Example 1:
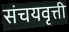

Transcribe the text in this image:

संचयवृत्ती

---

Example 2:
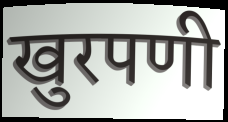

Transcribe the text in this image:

खुरपणी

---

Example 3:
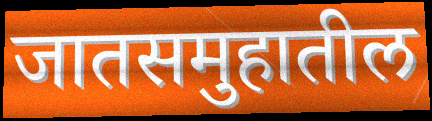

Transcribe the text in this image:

जातसमुहातील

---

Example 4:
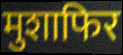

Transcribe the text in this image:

मुशाफिर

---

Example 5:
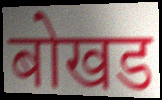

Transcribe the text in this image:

बोखड